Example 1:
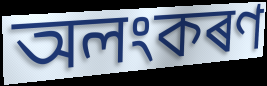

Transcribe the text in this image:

অলংকৰণ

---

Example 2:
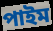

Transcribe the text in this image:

পাইম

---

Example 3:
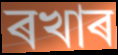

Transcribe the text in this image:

ৰখাৰ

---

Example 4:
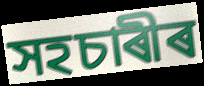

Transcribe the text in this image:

সহচাৰীৰ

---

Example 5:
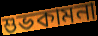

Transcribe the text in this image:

শুভকামনা